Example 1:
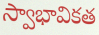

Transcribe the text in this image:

స్వాభావికత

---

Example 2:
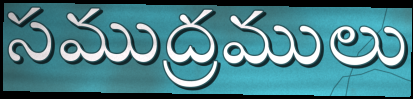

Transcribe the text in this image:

సముద్రములు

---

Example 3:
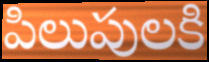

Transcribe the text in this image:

పిలుపులకి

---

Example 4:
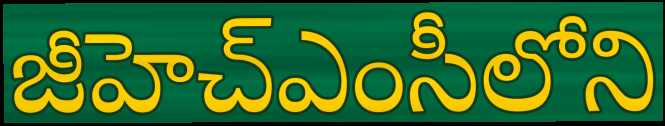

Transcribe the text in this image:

జీహెచ్ఎంసీలోని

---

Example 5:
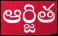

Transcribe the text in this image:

ఆర్జిత